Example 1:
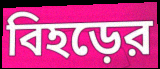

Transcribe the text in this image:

বিহড়ের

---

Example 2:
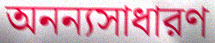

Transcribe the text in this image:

অনন্যসাধারণ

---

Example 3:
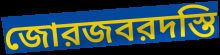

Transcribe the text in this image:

জোরজবরদস্তি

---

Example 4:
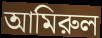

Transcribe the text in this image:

আমিরুল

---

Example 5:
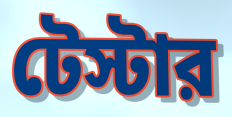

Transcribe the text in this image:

টেস্টার